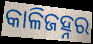
କାଳିଜହ୍ନର